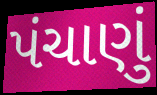
પંચાણું